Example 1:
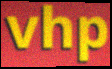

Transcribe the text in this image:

vhp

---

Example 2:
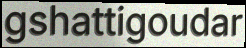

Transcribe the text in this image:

gshattigoudar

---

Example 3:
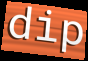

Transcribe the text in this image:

dip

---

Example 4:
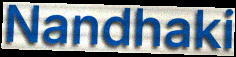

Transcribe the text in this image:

Nandhaki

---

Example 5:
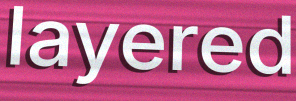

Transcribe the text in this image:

layered